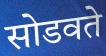
सोडवते